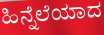
ಹಿನ್ನೆಲೆಯಾದ